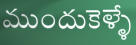
ముందుకెళ్ళే